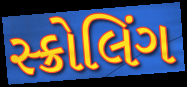
સ્ક્રોલિંગ